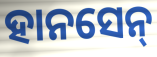
ହାନସେନ୍